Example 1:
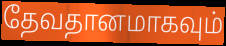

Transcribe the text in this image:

தேவதானமாகவும்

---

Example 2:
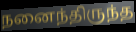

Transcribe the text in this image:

நனைந்திருந்த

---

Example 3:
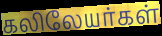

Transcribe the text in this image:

கலிலேயர்கள்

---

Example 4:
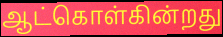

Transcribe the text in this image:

ஆட்கொள்கின்றது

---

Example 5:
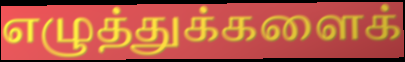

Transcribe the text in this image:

எழுத்துக்களைக்